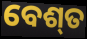
ବେଶ୍‍ତ